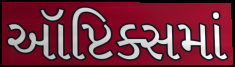
ઑપ્ટિક્સમાં